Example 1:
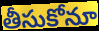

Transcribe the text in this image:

తీసుకోనూ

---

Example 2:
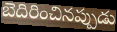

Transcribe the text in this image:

బెదిరించినప్పుడు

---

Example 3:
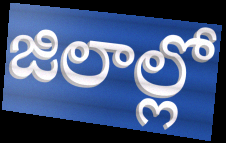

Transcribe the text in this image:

జిలాల్లో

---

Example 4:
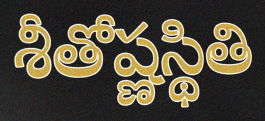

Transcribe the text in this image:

శీతోష్ణస్థితి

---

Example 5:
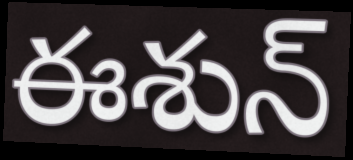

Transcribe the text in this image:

ఈశున్